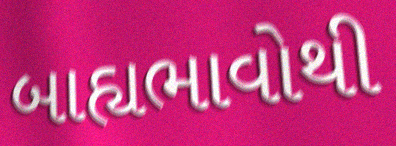
બાહ્યભાવોથી